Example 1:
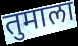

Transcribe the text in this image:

तुमाला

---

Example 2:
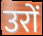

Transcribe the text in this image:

उरों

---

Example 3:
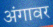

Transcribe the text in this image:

अंगावर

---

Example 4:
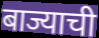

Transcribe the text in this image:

बाज्याची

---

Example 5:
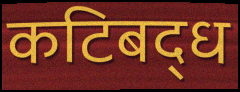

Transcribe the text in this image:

कटिबद्ध